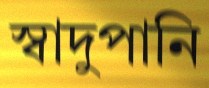
স্বাদুপানি